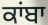
ਕਾਂਬਾ